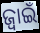
ଜ୍ଵାଇଁ